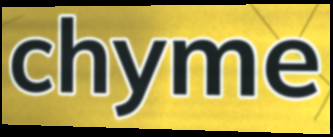
chyme